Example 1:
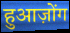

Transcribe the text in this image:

हुआज़ोंग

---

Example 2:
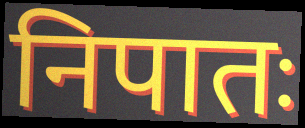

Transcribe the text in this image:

निपातः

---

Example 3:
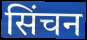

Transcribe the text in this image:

सिंचन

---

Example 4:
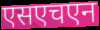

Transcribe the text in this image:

एसएचएन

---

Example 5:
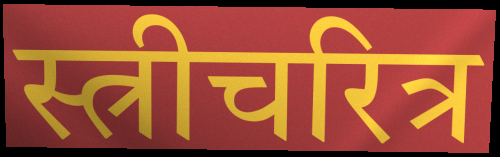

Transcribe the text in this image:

स्त्रीचरित्र